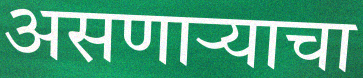
असणाऱ्याचा